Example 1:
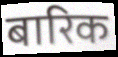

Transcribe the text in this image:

बारिक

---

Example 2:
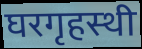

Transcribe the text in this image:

घरगृहस्थी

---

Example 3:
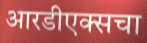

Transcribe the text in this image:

आरडीएक्सचा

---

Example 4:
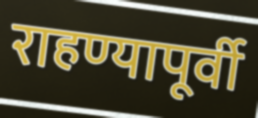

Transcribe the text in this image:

राहण्यापूर्वी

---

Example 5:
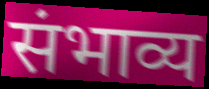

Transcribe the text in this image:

संभाव्य